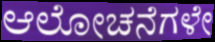
ಆಲೋಚನೆಗಳೇ